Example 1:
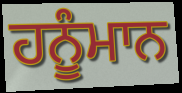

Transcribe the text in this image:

ਹਨੂੰਮਾਨ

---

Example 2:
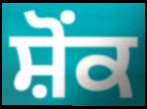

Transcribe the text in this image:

ਸ਼ੋਂਕ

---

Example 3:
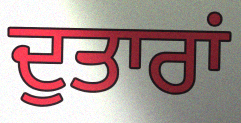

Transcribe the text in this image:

ਦੁਤਾਰਾਂ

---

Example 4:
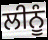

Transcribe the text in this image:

ਲੀਨੂੰ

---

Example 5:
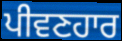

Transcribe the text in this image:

ਪੀਵਣਹਾਰ